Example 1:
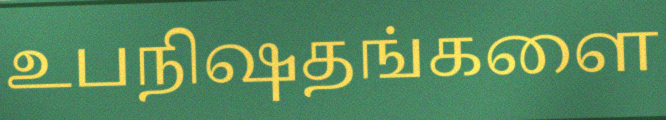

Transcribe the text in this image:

உபநிஷதங்களை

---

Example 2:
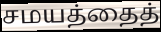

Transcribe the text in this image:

சமயத்தைத்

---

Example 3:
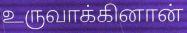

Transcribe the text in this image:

உருவாக்கினான்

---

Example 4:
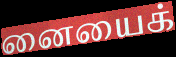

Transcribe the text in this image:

னையைக்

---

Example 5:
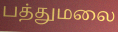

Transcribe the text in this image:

பத்துமலை